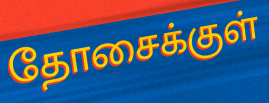
தோசைக்குள்